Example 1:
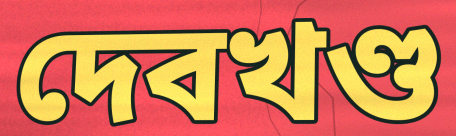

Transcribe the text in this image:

দেবখণ্ড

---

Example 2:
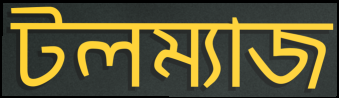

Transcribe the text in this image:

টলম্যাজ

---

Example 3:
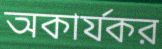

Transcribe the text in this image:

অকার্যকর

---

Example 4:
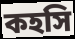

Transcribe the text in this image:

কহসি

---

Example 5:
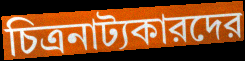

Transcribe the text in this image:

চিত্রনাট্যকারদের